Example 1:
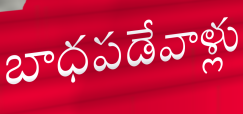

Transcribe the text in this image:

బాధపడేవాళ్లు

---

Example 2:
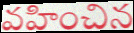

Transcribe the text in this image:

వహించిన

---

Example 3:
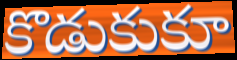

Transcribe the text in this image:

కొడుకుకూ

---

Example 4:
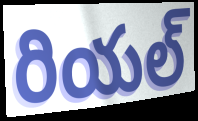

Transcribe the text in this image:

రియల్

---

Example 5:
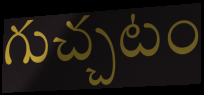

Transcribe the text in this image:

గుచ్చటం